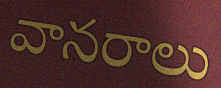
వానరాలు